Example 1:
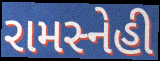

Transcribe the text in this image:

રામસ્નેહી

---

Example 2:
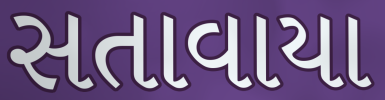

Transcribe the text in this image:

સતાવાયા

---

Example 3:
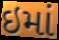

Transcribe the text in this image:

ઇમાં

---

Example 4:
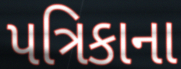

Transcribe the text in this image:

પત્રિકાના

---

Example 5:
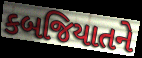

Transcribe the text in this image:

કબજિયાતને